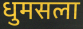
धुमसला